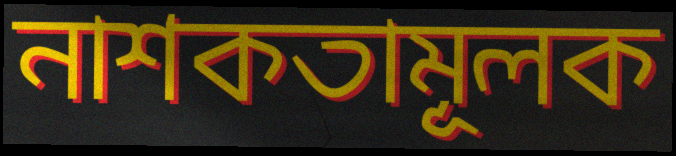
নাশকতামূলক